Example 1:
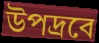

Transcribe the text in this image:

উপদ্রবে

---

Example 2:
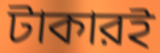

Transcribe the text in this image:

টাকারই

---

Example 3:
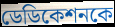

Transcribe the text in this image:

ডেডিকেশনকে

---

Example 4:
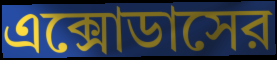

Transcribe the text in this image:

এক্সোডাসের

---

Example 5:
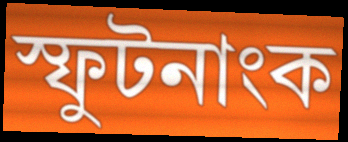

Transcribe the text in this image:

স্ফুটনাংক